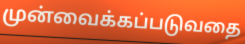
முன்வைக்கப்படுவதை